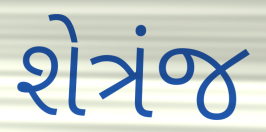
શેત્રંજ